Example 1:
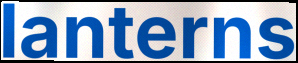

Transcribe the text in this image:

lanterns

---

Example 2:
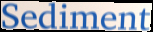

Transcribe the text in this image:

Sediment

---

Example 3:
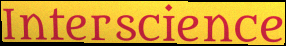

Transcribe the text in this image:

Interscience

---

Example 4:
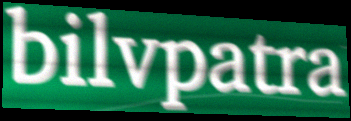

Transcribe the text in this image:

bilvpatra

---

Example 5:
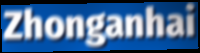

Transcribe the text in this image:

Zhonganhai